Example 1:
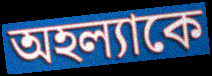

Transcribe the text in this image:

অহল্যাকে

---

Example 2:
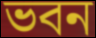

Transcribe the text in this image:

ভবন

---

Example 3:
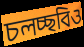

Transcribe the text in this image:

চলচ্ছবিও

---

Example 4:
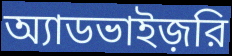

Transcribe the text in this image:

অ্যাডভাইজ়রি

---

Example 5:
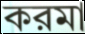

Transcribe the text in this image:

করমা